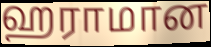
ஹராமான